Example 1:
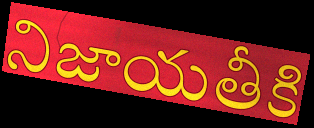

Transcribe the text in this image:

నిజాయతీకి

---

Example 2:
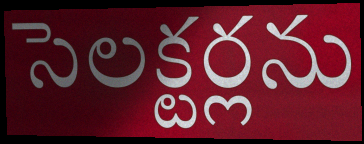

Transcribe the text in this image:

సెలక్టర్లను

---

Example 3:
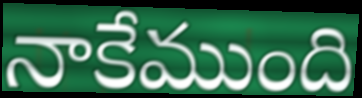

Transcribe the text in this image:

నాకేముంది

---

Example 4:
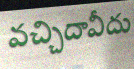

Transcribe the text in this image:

వచ్చిదావీదు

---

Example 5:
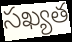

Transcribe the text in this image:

సఖ్యత